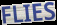
FLIES